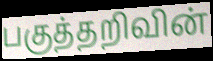
பகுத்தறிவின்